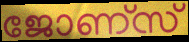
ജോണ്സ്